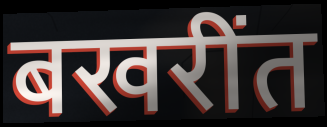
बखरींत